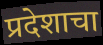
प्रदेशाचा